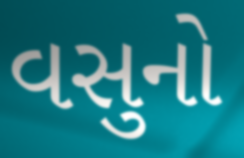
વસુનો